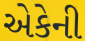
એકેની